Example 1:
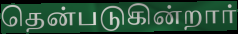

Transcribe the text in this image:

தென்படுகின்றார்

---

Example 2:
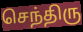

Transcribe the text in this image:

செந்திரு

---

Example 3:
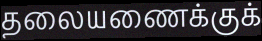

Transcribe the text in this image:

தலையணைக்குக்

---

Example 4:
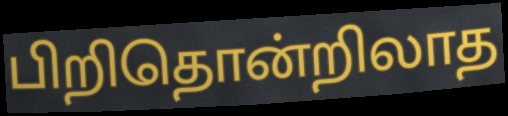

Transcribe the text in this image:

பிறிதொன்றிலாத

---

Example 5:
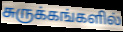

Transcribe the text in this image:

சுருக்கங்களில்